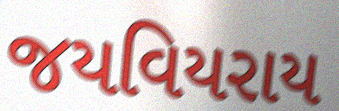
જયવિયરાય